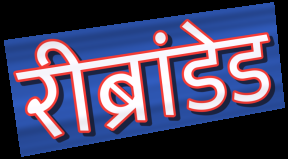
रीब्रांडेड